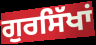
ਗੁਰਸਿੱਖਾਂ